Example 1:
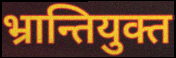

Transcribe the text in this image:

भ्रान्तियुक्त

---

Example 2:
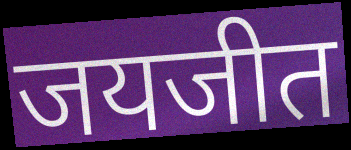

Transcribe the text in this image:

जयजीत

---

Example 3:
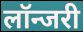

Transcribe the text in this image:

लॉन्जरी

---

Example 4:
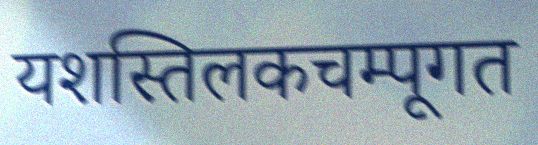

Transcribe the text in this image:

यशस्तिलकचम्पूगत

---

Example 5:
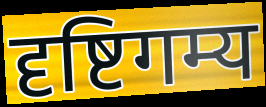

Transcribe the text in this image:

दृष्टिगम्य